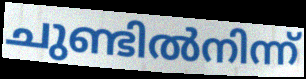
ചുണ്ടിൽനിന്ന്